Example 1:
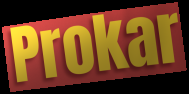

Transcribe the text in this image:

Prokar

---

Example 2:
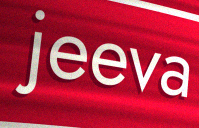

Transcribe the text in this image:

jeeva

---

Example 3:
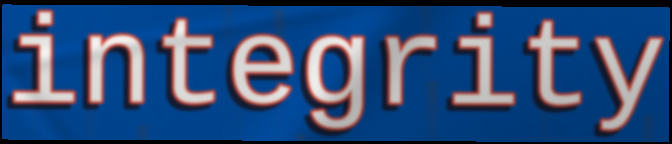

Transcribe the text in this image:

integrity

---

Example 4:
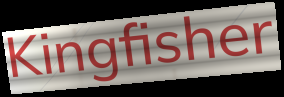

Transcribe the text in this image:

Kingfisher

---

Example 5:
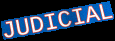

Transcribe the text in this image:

JUDICIAL